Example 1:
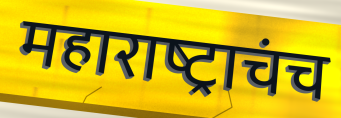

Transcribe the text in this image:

महाराष्ट्राचंच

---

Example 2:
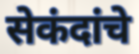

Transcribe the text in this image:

सेकंदांचे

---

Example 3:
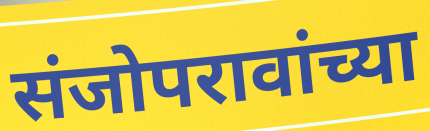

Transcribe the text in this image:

संजोपरावांच्या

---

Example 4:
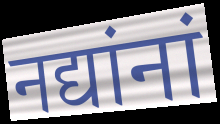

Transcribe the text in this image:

नद्यांनां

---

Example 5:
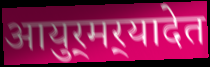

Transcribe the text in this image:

आयुर्मर्यादेत